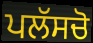
ਪਲੱਸਚੋ